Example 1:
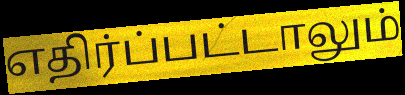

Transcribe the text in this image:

எதிர்ப்பட்டாலும்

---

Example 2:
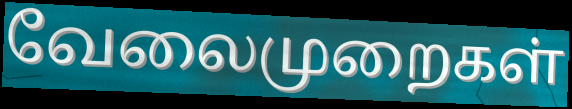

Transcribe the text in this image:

வேலைமுறைகள்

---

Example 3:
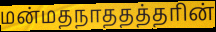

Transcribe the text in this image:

மன்மதநாததத்தரின்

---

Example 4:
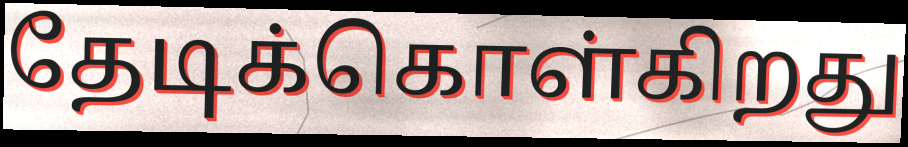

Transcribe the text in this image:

தேடிக்கொள்கிறது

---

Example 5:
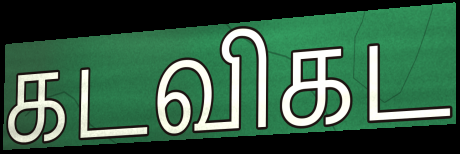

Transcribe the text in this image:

கடவிகட